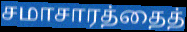
சமாசாரத்தைத்